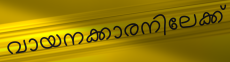
വായനക്കാരനിലേക്ക്